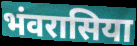
भंवरासिया